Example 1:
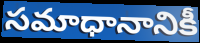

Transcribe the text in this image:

సమాధానానికీ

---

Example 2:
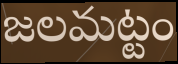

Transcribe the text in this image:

జలమట్టం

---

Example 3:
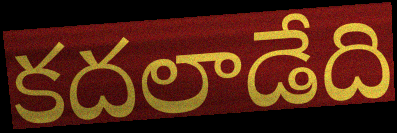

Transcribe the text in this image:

కదలాడేది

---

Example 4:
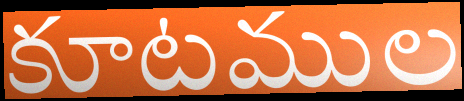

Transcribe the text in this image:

కూటముల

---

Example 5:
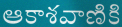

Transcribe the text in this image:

ఆకాశవాణికి